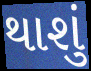
થાશું